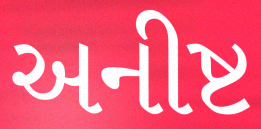
અનીષ્ટ